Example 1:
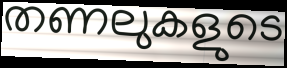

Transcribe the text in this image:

തണലുകളുടെ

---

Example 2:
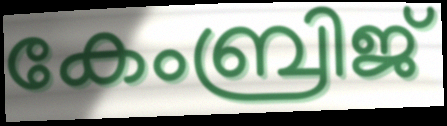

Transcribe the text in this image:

കേംബ്രിജ്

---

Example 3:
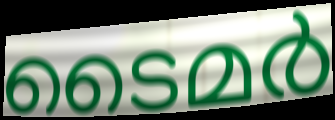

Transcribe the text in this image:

ടൈമർ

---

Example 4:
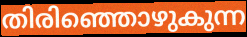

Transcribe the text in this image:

തിരിഞ്ഞൊഴുകുന്ന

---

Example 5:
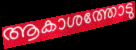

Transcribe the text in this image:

ആകാശത്തോടു